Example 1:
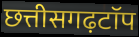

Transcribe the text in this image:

छत्तीसगढ़टॉप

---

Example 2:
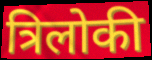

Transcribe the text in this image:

त्रिलोकी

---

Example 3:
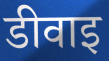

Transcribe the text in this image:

डीवाइ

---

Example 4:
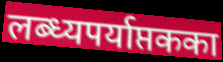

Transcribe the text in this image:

लब्ध्यपर्याप्तकका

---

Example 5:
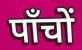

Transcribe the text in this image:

पाँचों